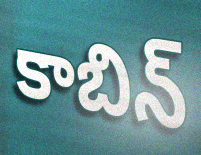
కాబిన్